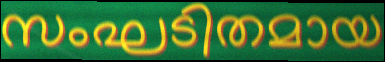
സംഘടിതമായ